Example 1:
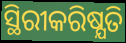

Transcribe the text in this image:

ସ୍ଥିରୀକରିଷ୍ଯତି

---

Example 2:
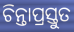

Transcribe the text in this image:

ଚିନ୍ତାପ୍ରସ୍ତୁତ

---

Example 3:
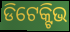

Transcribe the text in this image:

ଡିଟେକ୍ଟିଭ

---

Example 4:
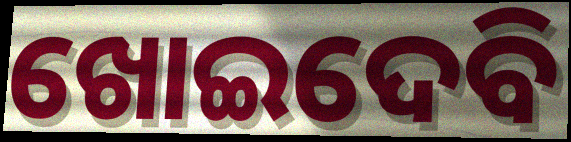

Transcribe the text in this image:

ଖୋଇଦେବି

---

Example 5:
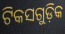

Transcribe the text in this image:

ଟିକସଗୁଡ଼ିକ